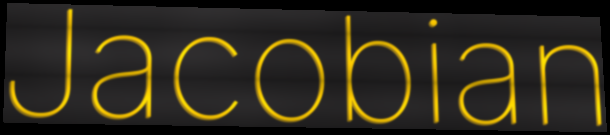
Jacobian